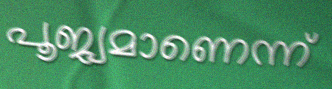
പൂജ്യമാണെന്ന്